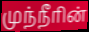
முந்நீரின்